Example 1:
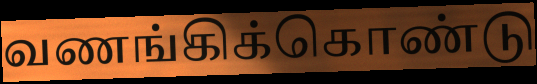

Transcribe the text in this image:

வணங்கிக்கொண்டு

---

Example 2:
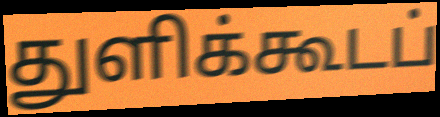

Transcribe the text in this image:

துளிக்கூடப்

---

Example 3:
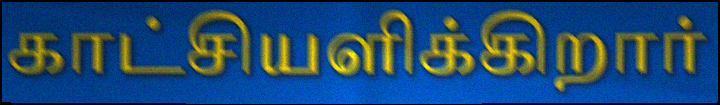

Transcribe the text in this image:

காட்சியளிக்கிறார்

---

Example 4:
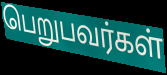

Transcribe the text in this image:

பெறுபவர்கள்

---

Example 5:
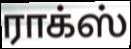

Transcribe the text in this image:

ராக்ஸ்